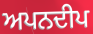
ਅਪਨਦੀਪ